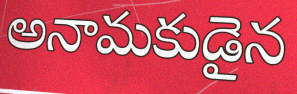
అనామకుడైన